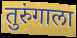
तुरुंगाला